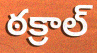
ఠక్రాల్